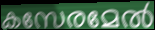
കസേരമേൽ